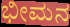
ಭೀಮನ